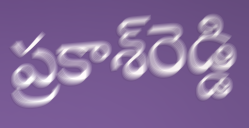
ప్రకాశ్‌రెడ్డి